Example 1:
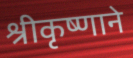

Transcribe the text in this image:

श्रीकृष्णाने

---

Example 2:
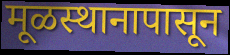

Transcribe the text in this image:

मूळस्थानापासून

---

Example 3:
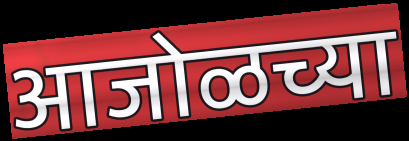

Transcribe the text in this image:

आजोळच्या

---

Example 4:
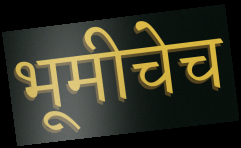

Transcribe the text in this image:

भूमीचेच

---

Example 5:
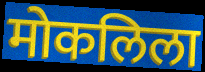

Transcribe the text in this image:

मोकलिला